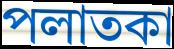
পলাতকা